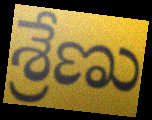
శ్రేణు